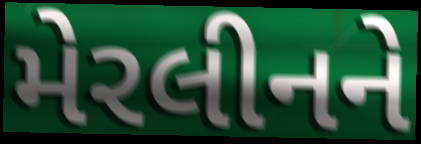
મેરલીનને